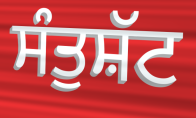
ਸੰਤੁਸ਼ੱਟ